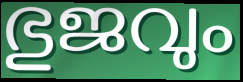
ഭുജവും